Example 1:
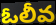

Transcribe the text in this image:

ఓలీవ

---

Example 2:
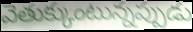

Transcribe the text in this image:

వెతుక్కుంటున్నప్పుడు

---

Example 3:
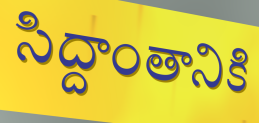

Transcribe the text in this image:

సిద్దాంతానికి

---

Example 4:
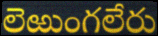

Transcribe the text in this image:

లెఱుంగలేరు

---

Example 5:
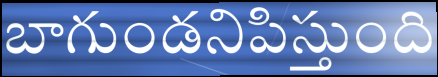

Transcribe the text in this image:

బాగుండనిపిస్తుంది